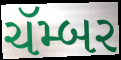
ચૅમ્બર